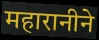
महारानीने